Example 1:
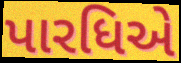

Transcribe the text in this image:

પારધિએ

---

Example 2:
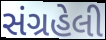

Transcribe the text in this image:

સંગ્રહેલી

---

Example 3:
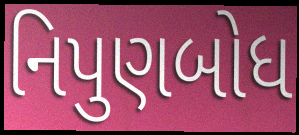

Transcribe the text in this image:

નિપુણબોધ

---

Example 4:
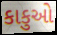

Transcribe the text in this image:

કાકુઓ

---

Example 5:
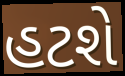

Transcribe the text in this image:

હટશે